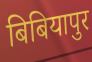
बिबियापुर